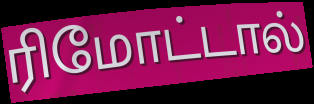
ரிமோட்டால்